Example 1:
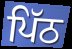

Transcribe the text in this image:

ਪਿੱਠ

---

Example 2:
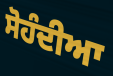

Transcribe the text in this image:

ਸੋਹੰਦੀਆ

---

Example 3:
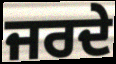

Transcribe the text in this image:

ਜਰਦੇ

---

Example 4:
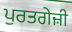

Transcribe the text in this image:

ਪੁਰਤਗੇਜ਼ੀ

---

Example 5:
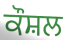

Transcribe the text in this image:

ਕੌਸ਼ਲ